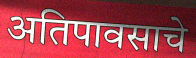
अतिपावसाचे